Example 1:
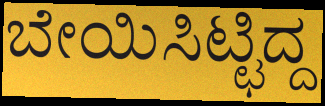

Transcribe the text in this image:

ಬೇಯಿಸಿಟ್ಟಿದ್ದ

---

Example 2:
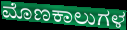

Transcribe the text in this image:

ಮೊಣಕಾಲುಗಳ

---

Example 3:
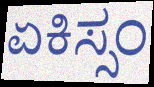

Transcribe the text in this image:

ಏಕಿಸ್ಸಂ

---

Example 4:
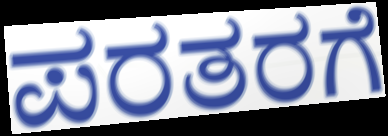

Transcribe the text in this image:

ಪರತರಗೆ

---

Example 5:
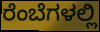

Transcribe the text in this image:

ರೆಂಬೆಗಳಲ್ಲಿ